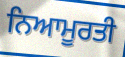
ਨਿਆਮੂਰਤੀ